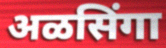
अळसिंगा